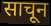
साचून